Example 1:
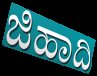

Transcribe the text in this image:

ಜಿಹಾದಿ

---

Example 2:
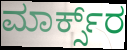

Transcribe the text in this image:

ಮಾರ್ಕ್ಸ್‌ರ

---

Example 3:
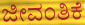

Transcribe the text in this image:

ಜೀವಂತಿಕೆ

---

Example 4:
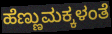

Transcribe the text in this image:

ಹೆಣ್ಣುಮಕ್ಕಳಂತೆ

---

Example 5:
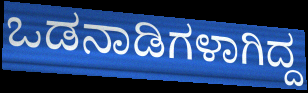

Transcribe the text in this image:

ಒಡನಾಡಿಗಳಾಗಿದ್ದ